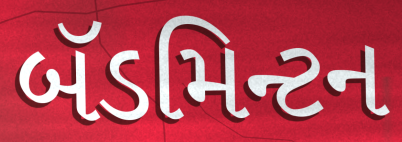
બૅડમિન્ટન